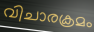
വിചാരക്രമം